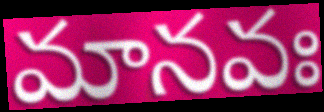
మానవః